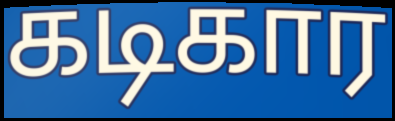
கடிகார